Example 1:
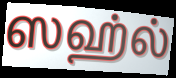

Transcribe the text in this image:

ஸஹ்ல்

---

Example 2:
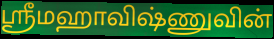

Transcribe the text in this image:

ஸ்ரீமஹாவிஷ்ணுவின்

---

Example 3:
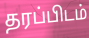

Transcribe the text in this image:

தரப்பிடம்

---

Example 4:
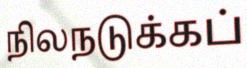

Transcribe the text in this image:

நிலநடுக்கப்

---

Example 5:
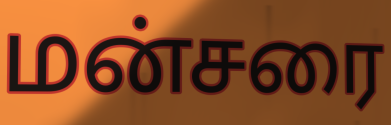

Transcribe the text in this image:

மன்சரை